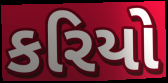
કરિયો